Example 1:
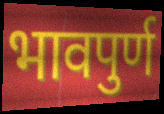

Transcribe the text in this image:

भावपुर्ण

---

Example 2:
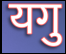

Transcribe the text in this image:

यगु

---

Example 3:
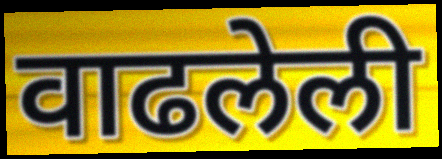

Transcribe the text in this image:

वाढलेली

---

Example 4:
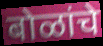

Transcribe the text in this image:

बोळांचे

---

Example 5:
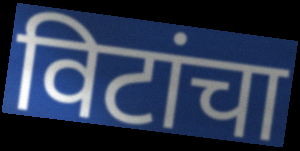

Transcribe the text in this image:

विटांचा